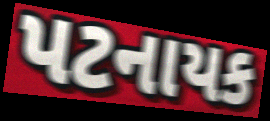
પટનાયક